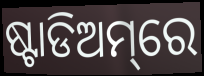
ଷ୍ଟାଡିଅମ୍‌ରେ